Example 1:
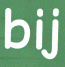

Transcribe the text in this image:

bij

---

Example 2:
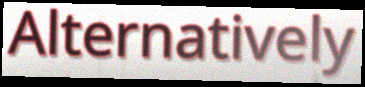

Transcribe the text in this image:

Alternatively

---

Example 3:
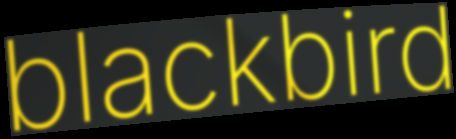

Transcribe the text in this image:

blackbird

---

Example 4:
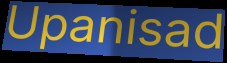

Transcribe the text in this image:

Upanisad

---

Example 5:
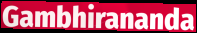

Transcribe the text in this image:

Gambhirananda